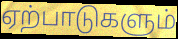
ஏற்பாடுகளும்